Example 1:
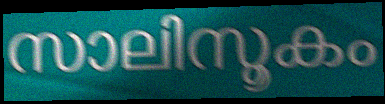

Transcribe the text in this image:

സാലിസൂകം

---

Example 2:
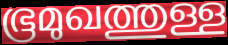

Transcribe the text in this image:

ഭൂമുഖത്തുള്ള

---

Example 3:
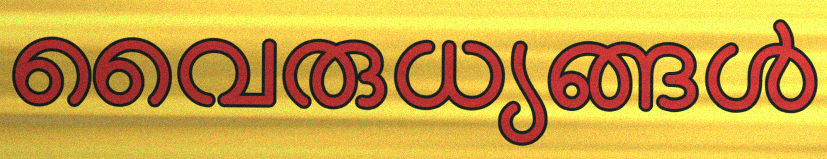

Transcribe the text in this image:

വൈരുധ്യങ്ങൾ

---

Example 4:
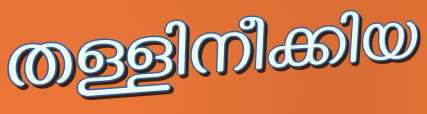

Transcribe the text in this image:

തള്ളിനീക്കിയ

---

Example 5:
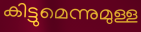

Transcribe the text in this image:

കിട്ടുമെന്നുമുള്ള